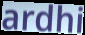
ardhi